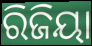
ରିଜିୟା